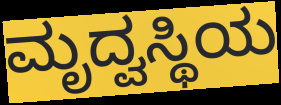
ಮೃದ್ವಸ್ಥಿಯ